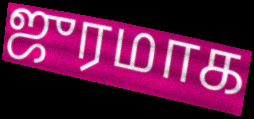
ஜுரமாக